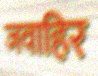
जवाहिर